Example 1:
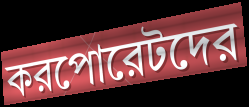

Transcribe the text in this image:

করপোরেটদের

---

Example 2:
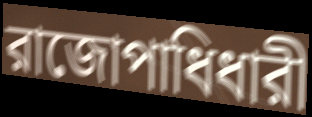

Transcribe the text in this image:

রাজোপাধিধারী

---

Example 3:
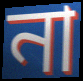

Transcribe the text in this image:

না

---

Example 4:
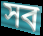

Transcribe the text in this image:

সব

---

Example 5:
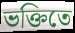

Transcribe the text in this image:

ভক্তিতে